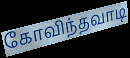
கோவிந்தவாடி